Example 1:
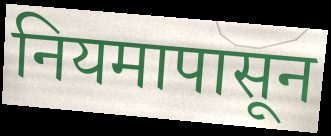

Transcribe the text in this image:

नियमापासून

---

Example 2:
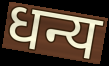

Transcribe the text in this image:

धन्य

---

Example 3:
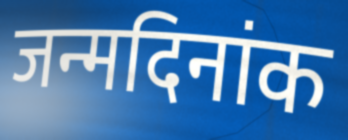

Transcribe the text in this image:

जन्मदिनांक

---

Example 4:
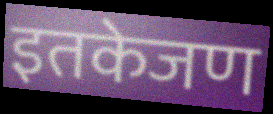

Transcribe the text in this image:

इतकेजण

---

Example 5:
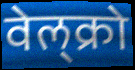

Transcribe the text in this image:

वेल्क्रो